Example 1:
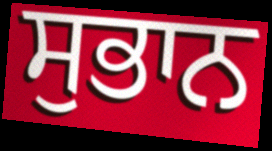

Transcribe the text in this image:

ਸੁਭਾਨ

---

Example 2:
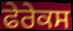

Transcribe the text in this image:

ਫੇਰੇਕਸ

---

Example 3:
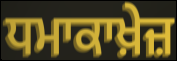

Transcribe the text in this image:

ਧਮਾਕਾਖ਼ੇਜ਼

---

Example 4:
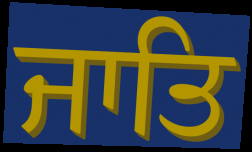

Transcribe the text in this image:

ਜਾਤਿ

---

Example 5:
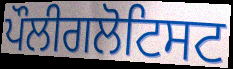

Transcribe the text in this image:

ਪੌਲੀਗਲੋਟਿਸਟ